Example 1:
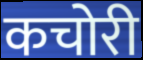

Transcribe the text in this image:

कचोरी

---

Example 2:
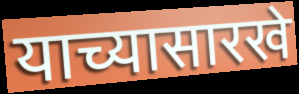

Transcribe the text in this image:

याच्यासारखे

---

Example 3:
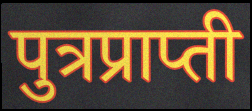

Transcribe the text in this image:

पुत्रप्राप्ती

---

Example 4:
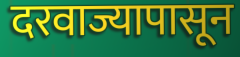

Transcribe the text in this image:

दरवाज्यापासून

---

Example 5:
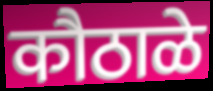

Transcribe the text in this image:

कौठाळे